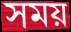
সময়